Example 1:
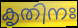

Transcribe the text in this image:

കൃതിനഃ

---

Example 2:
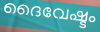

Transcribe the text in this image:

ദൈവേഷ്ടം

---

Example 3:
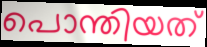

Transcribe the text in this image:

പൊന്തിയത്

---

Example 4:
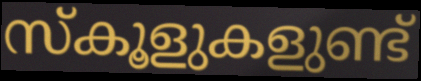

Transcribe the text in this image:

സ്കൂളുകളുണ്ട്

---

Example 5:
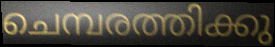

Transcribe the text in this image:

ചെമ്പരത്തിക്കു